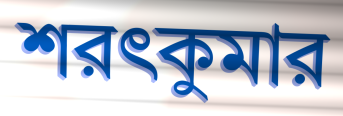
শরৎকুমার